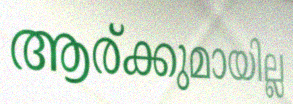
ആര്ക്കുമായില്ല